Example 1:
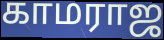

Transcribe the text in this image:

காமராஜ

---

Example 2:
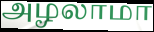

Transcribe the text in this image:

அழலாமா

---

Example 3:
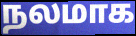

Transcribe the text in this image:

நலமாக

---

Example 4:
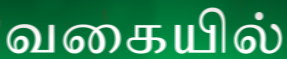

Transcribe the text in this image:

வகையில்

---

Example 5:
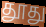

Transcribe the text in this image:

தூது